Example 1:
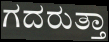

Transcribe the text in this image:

ಗದರುತ್ತಾ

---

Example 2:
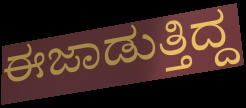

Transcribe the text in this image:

ಈಜಾಡುತ್ತಿದ್ದ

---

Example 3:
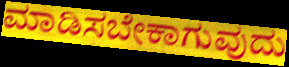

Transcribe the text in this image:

ಮಾಡಿಸಬೇಕಾಗುವುದು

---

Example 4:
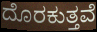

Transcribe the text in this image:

ದೊರಕುತ್ತವೆ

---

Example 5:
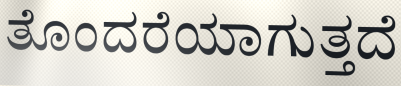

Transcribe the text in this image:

ತೊಂದರೆಯಾಗುತ್ತದೆ